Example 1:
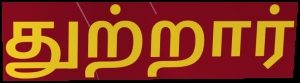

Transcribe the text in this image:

துற்றார்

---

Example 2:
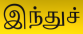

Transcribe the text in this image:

இந்துச்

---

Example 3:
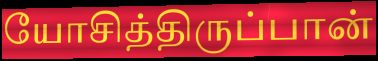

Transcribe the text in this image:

யோசித்திருப்பான்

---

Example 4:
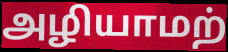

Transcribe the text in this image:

அழியாமற்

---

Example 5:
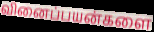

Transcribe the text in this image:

வினைப்பயன்களை